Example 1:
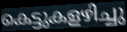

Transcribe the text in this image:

കെട്ടുകളഴിച്ചു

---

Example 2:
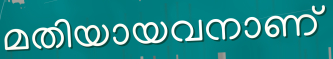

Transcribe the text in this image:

മതിയായവനാണ്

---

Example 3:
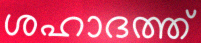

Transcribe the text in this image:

ശഹാദത്ത്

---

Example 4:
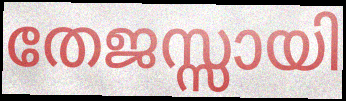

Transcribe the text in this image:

തേജസ്സായി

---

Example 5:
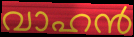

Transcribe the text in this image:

വാഹൻ